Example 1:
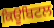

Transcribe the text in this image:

ਕਿਊਬਿਟਲ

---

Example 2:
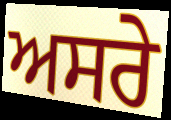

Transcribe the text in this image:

ਅਸਰੇ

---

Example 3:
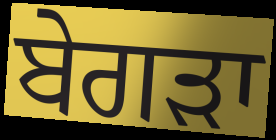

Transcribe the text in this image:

ਬੇਗੜਾ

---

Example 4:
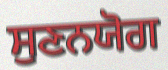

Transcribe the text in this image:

ਸੁਣਨਯੋਗ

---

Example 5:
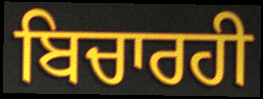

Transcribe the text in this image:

ਬਿਚਾਰਹੀ